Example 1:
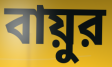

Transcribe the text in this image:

বায়ুর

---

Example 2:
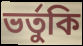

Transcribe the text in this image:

ভর্তুকি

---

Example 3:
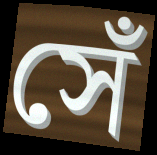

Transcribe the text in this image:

সেঁ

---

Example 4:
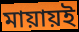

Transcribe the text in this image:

মায়ায়ই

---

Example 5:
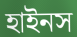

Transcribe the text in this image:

হাইনস